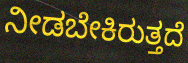
ನೀಡಬೇಕಿರುತ್ತದೆ